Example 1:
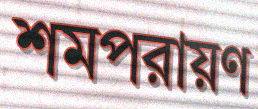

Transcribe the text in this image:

শমপরায়ণ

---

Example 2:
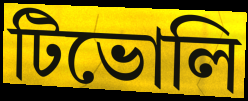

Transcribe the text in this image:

টিভোলি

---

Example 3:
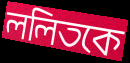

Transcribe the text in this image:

ললিতকে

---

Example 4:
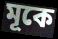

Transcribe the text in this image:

মূকে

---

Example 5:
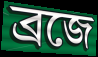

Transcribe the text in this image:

ব্রজে